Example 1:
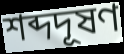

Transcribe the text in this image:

শব্দদূষণ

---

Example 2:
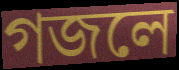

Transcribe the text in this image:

গজলে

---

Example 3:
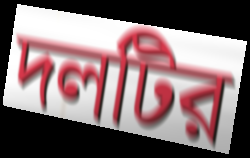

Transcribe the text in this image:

দলটির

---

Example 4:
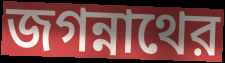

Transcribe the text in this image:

জগন্নাথের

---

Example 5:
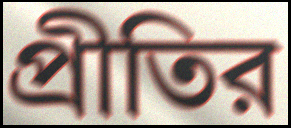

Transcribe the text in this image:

প্রীতির